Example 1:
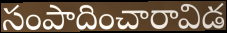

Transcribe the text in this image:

సంపాదించారావిడ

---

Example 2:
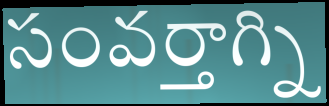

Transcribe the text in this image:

సంవర్తాగ్ని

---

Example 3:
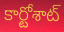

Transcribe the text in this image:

కార్టోశాట్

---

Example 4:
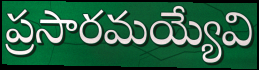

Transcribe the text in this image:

ప్రసారమయ్యేవి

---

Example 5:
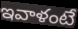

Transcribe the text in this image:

ఇవాళంటే